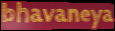
bhavaneya